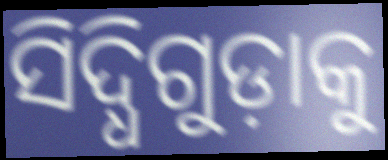
ସିଦ୍ଧିଗୁଡ଼ାକୁ